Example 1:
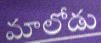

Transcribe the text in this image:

మాలోడు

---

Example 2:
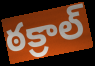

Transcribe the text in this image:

ఠక్రాల్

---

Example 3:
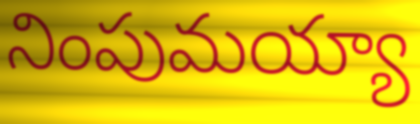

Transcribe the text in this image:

నింపుమయ్యా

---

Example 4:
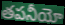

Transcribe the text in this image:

తపనీయో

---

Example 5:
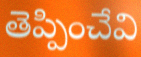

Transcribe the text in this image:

తెప్పించేవి